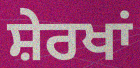
ਸ਼ੇਰਖਾਂ